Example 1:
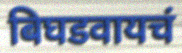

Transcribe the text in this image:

बिघडवायचं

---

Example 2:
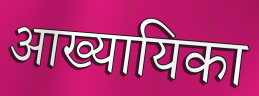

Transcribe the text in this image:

आख्यायिका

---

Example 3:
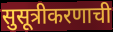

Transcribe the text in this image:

सुसूत्रीकरणाची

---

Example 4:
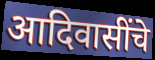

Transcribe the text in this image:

आदिवासींचे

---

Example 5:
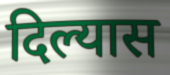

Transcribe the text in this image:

दिल्यास